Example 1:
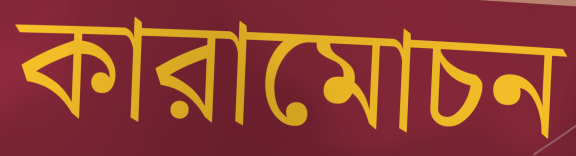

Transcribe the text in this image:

কারামোচন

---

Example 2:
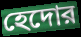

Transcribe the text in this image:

হেদোর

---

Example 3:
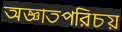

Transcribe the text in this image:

অজ্ঞাতপরিচয়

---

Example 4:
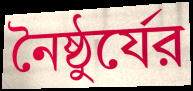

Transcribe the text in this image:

নৈষ্ঠুর্যের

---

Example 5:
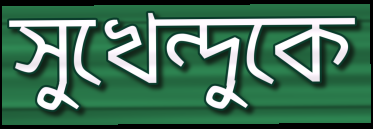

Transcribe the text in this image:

সুখেন্দুকে